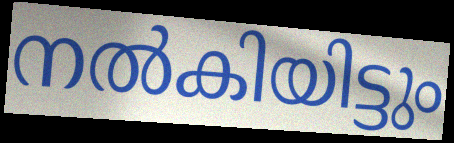
നൽകിയിട്ടും